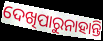
ଦେଖିପାରୁନାହାନ୍ତି